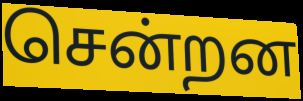
சென்றன